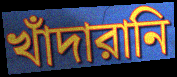
খাঁদারানি